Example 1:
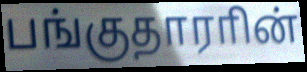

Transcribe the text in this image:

பங்குதாரரின்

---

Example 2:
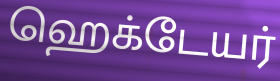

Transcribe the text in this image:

ஹெக்டேயர்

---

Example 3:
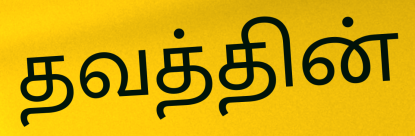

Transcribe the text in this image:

தவத்தின்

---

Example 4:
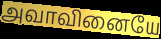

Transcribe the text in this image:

அவாவினையே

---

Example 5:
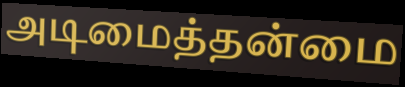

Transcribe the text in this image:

அடிமைத்தன்மை